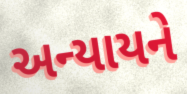
અન્યાયને